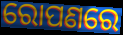
ରୋପଣରେ